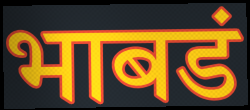
भाबडं